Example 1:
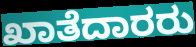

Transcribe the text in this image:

ಖಾತೆದಾರರು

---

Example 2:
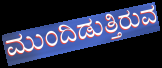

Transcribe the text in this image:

ಮುಂದಿಡುತ್ತಿರುವ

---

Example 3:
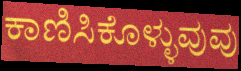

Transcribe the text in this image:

ಕಾಣಿಸಿಕೊಳ್ಳುವುವು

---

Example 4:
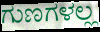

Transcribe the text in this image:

ಗುಣಗಳಲ್ಲ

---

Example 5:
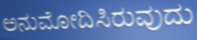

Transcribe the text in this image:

ಅನುಮೋದಿಸಿರುವುದು